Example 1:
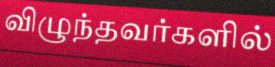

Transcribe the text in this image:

விழுந்தவர்களில்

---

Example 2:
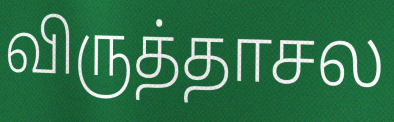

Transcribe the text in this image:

விருத்தாசல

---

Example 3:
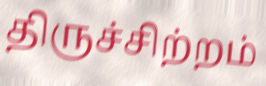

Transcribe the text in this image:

திருச்சிற்றம்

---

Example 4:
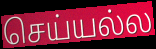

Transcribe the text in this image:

செய்யல்ல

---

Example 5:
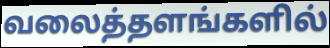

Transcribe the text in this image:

வலைத்தளங்களில்